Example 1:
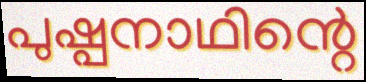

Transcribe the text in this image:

പുഷ്പനാഥിന്റെ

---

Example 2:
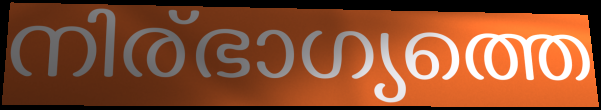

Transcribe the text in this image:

നിര്ഭാഗ്യത്തെ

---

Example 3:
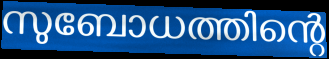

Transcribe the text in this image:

സുബോധത്തിന്റെ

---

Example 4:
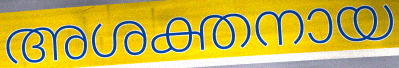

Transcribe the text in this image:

അശക്തനായ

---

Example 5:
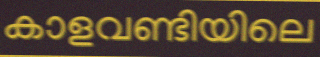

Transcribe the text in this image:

കാളവണ്ടിയിലെ